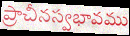
ప్రాచీనస్వభావము